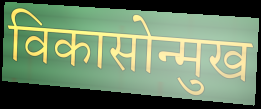
विकासोन्मुख